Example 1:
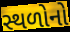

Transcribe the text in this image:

સ્થળોનો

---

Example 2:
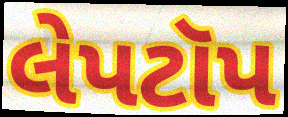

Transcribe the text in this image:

લેપટૉપ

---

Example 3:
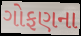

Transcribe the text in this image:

ગોફણના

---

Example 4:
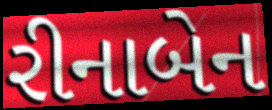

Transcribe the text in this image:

રીનાબેન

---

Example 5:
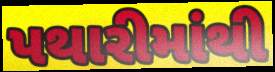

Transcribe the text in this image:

પથારીમાંથી